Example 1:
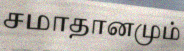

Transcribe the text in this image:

சமாதானமும்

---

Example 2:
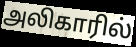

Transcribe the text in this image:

அலிகாரில்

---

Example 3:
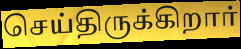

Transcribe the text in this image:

செய்திருக்கிறார்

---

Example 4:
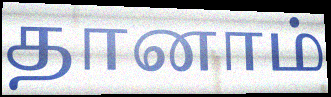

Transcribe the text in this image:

தானாம்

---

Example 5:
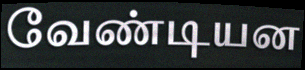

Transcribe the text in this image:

வேண்டியன